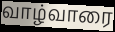
வாழ்வாரை